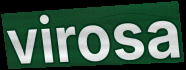
virosa